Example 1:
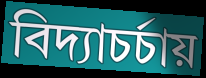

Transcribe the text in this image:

বিদ্যাচর্চায়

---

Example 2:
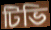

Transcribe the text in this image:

টিভি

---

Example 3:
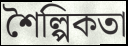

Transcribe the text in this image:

শৈল্পিকতা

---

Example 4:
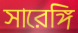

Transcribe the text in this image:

সারেঙ্গি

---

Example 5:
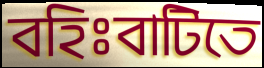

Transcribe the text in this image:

বহিঃবাটিতে